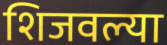
शिजवल्या